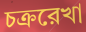
চক্ররেখা